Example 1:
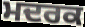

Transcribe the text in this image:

ਮਦਰਕ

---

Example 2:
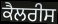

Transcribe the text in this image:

ਕੈਲਰੀਸ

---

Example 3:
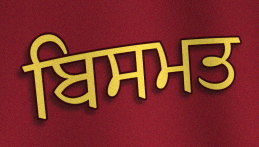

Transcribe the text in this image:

ਬਿਸਮਤ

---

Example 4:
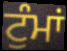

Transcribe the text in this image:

ਟੁੰਮਾਂ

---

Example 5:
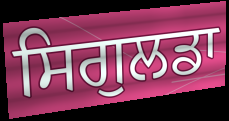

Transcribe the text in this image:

ਸਿਗੁਲਡਾ